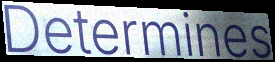
Determines